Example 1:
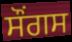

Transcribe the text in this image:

ਸੌਂਗਸ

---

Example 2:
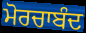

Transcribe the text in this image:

ਮੋਰਚਾਬੰਦ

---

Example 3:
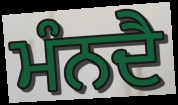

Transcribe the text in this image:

ਮੰਨਦੈ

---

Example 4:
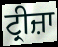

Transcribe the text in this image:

ਟ੍ਰੀਜ਼ਾ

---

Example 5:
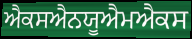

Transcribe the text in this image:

ਐਕਸਐਨਯੂਐਮਐਕਸ